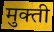
मुक्ती